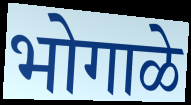
भोगाळे